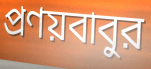
প্রণয়বাবুর